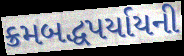
ક્રમબદ્ધપર્યાયની